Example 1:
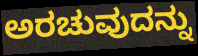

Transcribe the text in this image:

ಅರಚುವುದನ್ನು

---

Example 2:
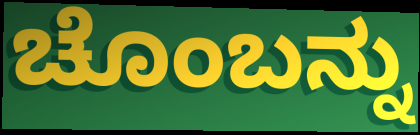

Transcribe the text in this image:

ಚೊಂಬನ್ನು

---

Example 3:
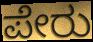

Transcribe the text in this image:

ಪೇರು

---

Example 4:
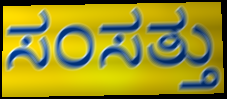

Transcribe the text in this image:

ಸಂಸತ್ತು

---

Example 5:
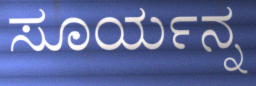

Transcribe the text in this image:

ಸೂರ್ಯನ್ನ